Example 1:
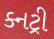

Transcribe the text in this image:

ક્નટ્રી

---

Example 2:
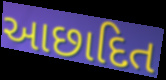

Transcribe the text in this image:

આછાદિત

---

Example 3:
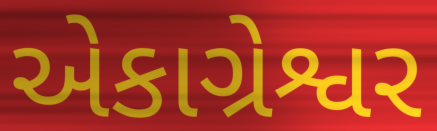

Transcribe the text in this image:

એકાગ્રેશ્વર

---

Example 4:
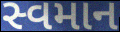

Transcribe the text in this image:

સ્વમાન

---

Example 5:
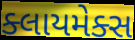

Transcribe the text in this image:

ક્લાયમેક્સ